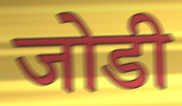
जोडी